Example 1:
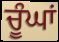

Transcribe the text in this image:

ਚੂੰਘਾਂ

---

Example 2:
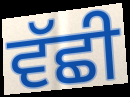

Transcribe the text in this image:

ਵੱਛੀ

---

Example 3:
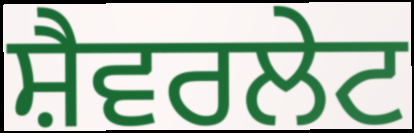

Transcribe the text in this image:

ਸ਼ੈਵਰਲੇਟ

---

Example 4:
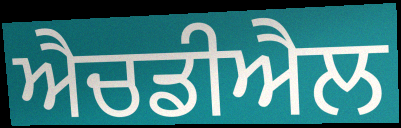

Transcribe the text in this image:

ਐਚਡੀਐਲ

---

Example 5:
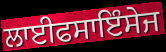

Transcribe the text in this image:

ਲਾਈਫਸਾਇੰਸੇਜ